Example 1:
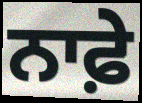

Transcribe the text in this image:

ਨਾਫ਼ੇ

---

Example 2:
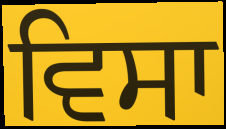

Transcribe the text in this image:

ਵਿਸਾ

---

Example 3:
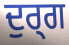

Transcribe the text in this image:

ਦੁਰ੍ਗ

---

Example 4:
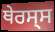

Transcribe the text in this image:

ਥੇਰਸ੍ਸ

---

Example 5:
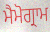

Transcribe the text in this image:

ਮੈਮੋਗ੍ਰਾਮ